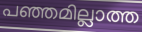
പഞ്ഞമില്ലാത്ത